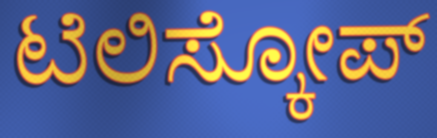
ಟೆಲಿಸ್ಕೋಪ್